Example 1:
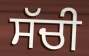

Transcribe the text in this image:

ਸੱਚੀ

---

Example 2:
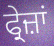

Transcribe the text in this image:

ਫ੍ਰੇਜ਼ਾਂ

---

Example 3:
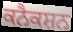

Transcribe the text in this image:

ਕਨੈਕਸ਼ਨ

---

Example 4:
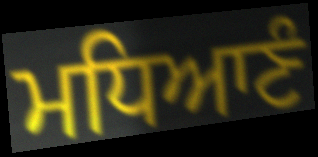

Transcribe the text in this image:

ਮਧਿਆਣੰ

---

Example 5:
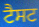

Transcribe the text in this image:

ਟੈਸਟ